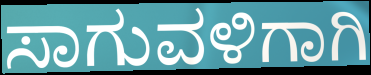
ಸಾಗುವಳಿಗಾಗಿ